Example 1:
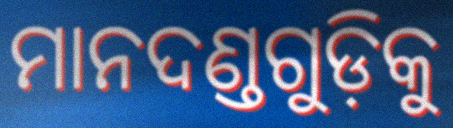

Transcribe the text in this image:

ମାନଦଣ୍ଡଗୁଡ଼ିକୁ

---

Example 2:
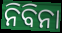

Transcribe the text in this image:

ନିବିନା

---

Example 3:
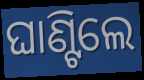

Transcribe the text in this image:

ଘାଣ୍ଟିଲେ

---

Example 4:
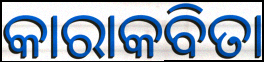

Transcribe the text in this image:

କାରାକବିତା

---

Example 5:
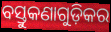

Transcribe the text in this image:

ବସ୍ତୁକଣାଗୁଡ଼ିକର